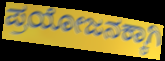
ಪ್ರಯೋಜನಕ್ಕಾಗಿ